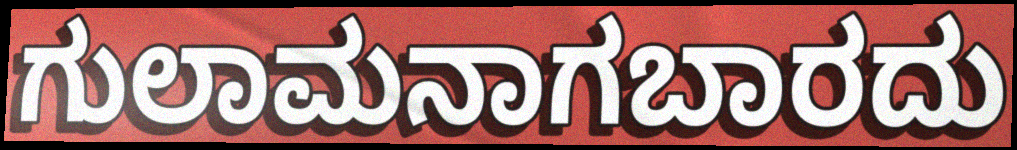
ಗುಲಾಮನಾಗಬಾರದು